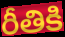
రీతికి